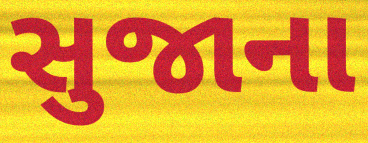
સુજાના